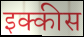
इक्‍कीस